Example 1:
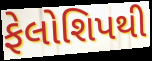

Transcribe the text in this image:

ફેલોશિપથી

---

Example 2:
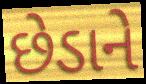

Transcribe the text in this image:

છેડાને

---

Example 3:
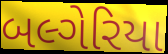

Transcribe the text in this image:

બલ્ગેરિયા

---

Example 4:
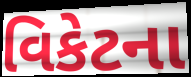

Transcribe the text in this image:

વિકેટના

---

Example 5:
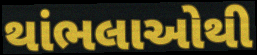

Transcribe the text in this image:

થાંભલાઓથી